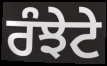
ਰੰਝੇਟੇ